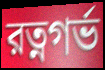
রত্নগর্ভ